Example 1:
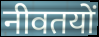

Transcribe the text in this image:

नीवतयों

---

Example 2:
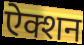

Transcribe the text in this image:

ऐक्‍शन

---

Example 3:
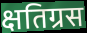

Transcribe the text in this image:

क्षतिग्रस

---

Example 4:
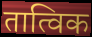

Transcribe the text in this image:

तात्विक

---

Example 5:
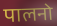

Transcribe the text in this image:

पालनो